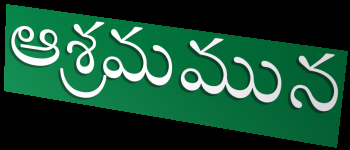
ఆశ్రమమున